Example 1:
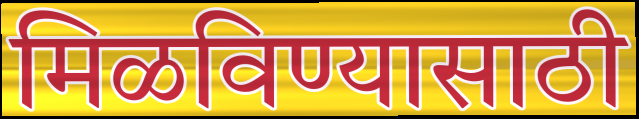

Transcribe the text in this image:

मिळविण्यासाठी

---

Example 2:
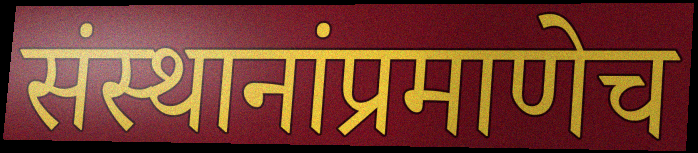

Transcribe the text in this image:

संस्थानांप्रमाणेच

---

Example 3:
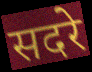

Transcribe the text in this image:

सदरे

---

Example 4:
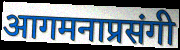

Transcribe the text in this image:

आगमनाप्रसंगी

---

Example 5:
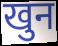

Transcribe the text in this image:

खुन